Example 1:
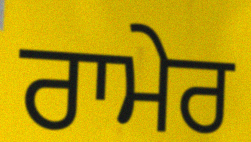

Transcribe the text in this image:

ਰਾਮੇਰ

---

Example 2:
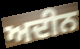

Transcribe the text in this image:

ਅਦੀਨ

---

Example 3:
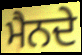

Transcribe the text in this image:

ਮੈਨਦੇ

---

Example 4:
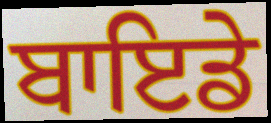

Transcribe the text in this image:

ਬਾਇਡੇ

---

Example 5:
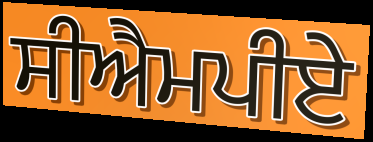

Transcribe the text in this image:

ਸੀਐਮਪੀਏ